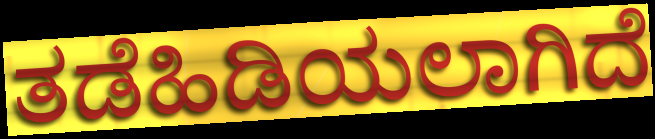
ತಡೆಹಿಡಿಯಲಾಗಿದೆ